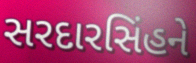
સરદારસિંહને